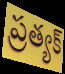
ప్రత్యక్